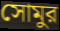
সোমুর